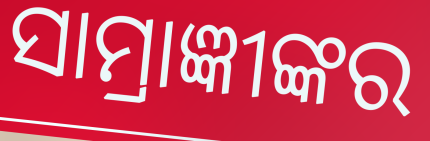
ସାମ୍ରାଜ୍ଞୀଙ୍କର